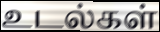
உடல்கள்